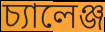
চ্যালেঞ্জ